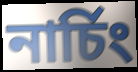
নাৰ্চিং